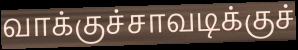
வாக்குச்சாவடிக்குச்